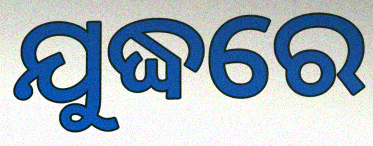
ଯୁଦ୍ଧରେ